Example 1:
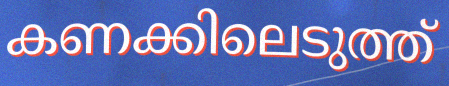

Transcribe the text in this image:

കണക്കിലെടുത്ത്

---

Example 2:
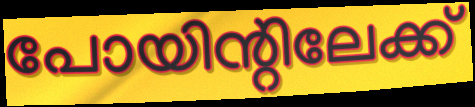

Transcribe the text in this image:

പോയിന്റിലേക്ക്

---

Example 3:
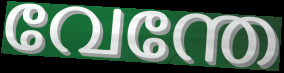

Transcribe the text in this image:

വേന്തേ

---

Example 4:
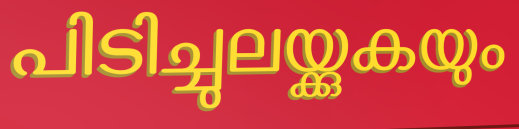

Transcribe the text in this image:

പിടിച്ചുലയ്ക്കുകയും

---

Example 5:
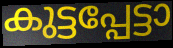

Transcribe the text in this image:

കുട്ടപ്പേട്ടാ